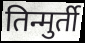
तिन्मुर्ती